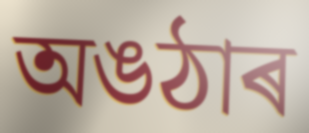
অঙঠাৰ